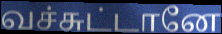
வச்சுட்டானே